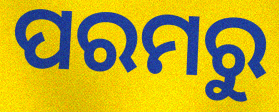
ପରମରୁ